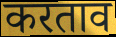
करताव